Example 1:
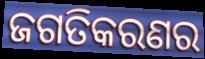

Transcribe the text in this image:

ଜଗତିକରଣର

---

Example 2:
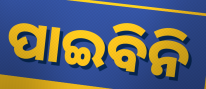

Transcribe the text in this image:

ପାଇବିନି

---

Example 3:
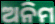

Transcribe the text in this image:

ଅନିମ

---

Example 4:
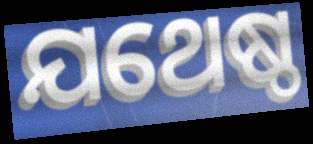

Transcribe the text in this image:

ଯଥେଷ୍ଠ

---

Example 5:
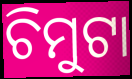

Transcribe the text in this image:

ଚିମୁଟା